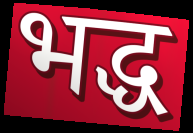
भद्ध